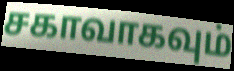
சகாவாகவும்